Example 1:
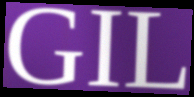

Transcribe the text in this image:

GIL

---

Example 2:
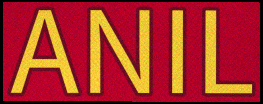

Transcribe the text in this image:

ANIL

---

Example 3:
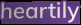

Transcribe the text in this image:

heartily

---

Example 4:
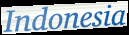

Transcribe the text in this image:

Indonesia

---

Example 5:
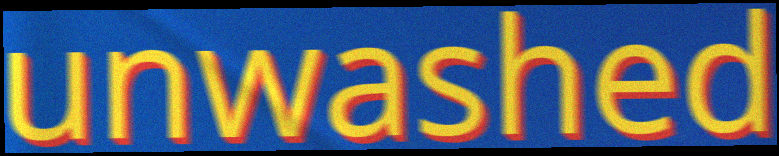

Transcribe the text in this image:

unwashed